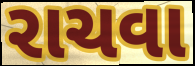
રાચવા